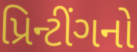
પ્રિન્ટીંગનો